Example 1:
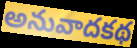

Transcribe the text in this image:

అనువాదకథ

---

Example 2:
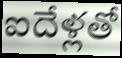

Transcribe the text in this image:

ఐదేళ్లతో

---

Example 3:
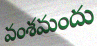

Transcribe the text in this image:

వంశమందు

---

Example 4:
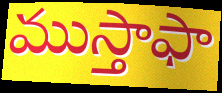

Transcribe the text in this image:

ముస్తాఫా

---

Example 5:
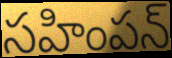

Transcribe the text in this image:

సహింపన్